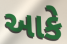
આકે